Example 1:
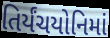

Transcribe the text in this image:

તિર્યંચયોનિમાં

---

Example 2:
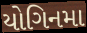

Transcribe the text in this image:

યોગિનમા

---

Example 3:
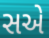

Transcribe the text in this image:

સએ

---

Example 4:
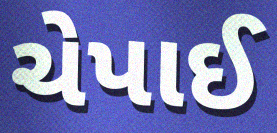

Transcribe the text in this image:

ચેપાઈ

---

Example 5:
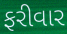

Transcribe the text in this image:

ફરીવાર